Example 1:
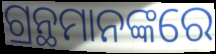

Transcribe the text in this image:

ଗ୍ରନ୍ଥମାନଙ୍କରେ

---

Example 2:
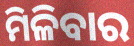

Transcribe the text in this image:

ମିଳିବାର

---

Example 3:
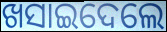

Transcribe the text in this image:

ଖସାଇଦେଲେ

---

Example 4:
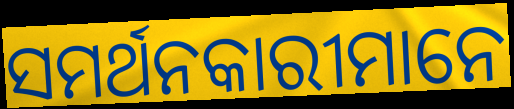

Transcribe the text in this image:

ସମର୍ଥନକାରୀମାନେ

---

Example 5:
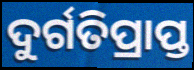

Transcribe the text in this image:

ଦୁର୍ଗତିପ୍ରାପ୍ତ